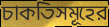
চাকতিসমূহের